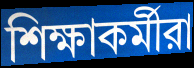
শিক্ষাকর্মীরা